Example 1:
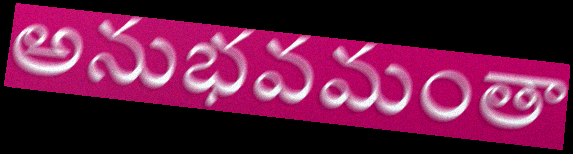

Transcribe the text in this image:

అనుభవమంతా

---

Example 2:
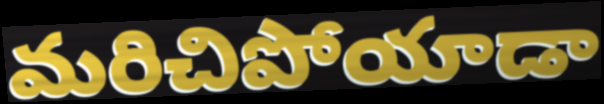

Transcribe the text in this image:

మరిచిపోయాడా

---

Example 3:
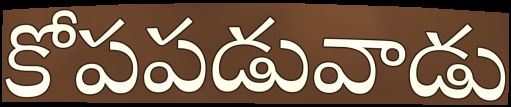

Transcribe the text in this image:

కోపపడువాడు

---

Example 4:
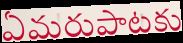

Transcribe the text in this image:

ఏమరుపాటకు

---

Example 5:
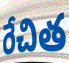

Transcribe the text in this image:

రేచిత